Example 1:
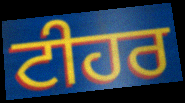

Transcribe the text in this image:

ਟੀਹਰ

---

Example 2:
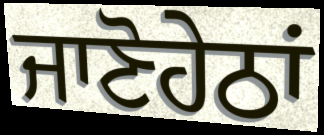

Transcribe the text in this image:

ਜਾਣੋਹੇਠਾਂ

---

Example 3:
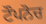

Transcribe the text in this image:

ਟੌਪਨੋਚ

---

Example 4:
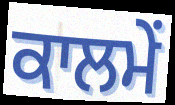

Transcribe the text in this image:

ਕਾਲਮੇਂ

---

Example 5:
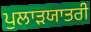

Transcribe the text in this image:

ਪੁਲਾੜਯਾਤਰੀ